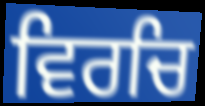
ਵਿਰਚਿ